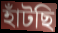
হাঁটছি